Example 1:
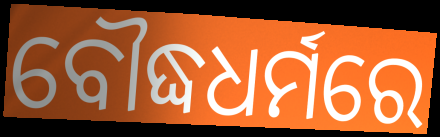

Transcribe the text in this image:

ବୌଦ୍ଧଧର୍ମରେ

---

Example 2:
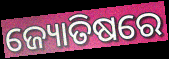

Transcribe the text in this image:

ଜ୍ୟୋତିଷରେ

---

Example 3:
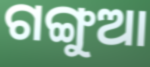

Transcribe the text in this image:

ଗଙ୍ଗୁଆ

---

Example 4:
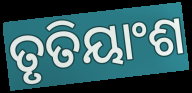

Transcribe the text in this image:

ତୃତିୟାଂଶ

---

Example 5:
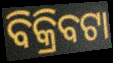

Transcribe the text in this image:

ବିକ୍ରିବଟା